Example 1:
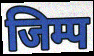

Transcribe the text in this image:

जिम्प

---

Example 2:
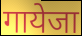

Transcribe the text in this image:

गायेजा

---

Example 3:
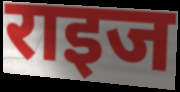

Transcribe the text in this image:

राइज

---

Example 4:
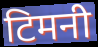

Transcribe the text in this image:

टिमनी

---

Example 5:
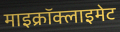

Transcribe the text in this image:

माइक्रॉक्लाइमेट